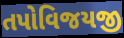
તપોવિજયજી